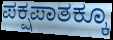
ಪಕ್ಷಪಾತಕ್ಕೂ